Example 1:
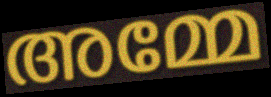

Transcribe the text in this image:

അമ്മേ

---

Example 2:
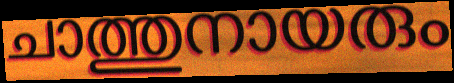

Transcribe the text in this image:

ചാത്തുനായരും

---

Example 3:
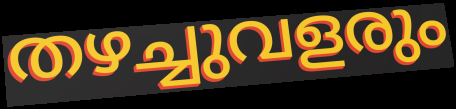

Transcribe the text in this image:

തഴച്ചുവളരും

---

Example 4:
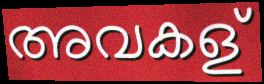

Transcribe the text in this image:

അവകള്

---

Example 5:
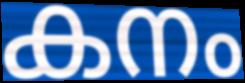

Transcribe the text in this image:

കനം